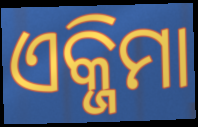
ଏକ୍ଜିମା